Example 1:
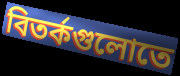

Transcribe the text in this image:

বিতর্কগুলোতে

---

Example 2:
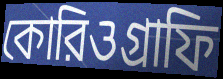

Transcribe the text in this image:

কোরিওগ্রাফি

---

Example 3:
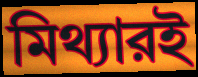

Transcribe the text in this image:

মিথ্যারই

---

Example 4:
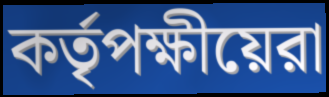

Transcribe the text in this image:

কর্তৃপক্ষীয়েরা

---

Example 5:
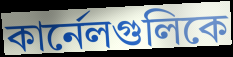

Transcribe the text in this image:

কার্নেলগুলিকে